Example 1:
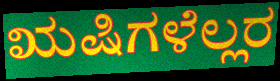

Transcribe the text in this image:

ಋಷಿಗಳೆಲ್ಲರ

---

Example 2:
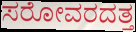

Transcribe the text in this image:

ಸರೋವರದತ್ತ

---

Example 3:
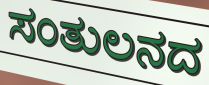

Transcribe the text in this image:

ಸಂತುಲನದ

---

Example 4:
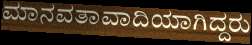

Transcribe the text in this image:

ಮಾನವತಾವಾದಿಯಾಗಿದ್ದರು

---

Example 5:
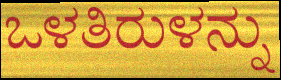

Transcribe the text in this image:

ಒಳತಿರುಳನ್ನು